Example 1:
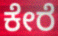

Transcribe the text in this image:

ಕೇರೆ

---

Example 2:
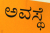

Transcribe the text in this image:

ಅವಸ್ಥೆ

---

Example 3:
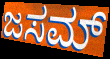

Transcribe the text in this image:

ಜಸಮ್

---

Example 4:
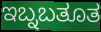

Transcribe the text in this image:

ಇಬ್ನಬತೂತ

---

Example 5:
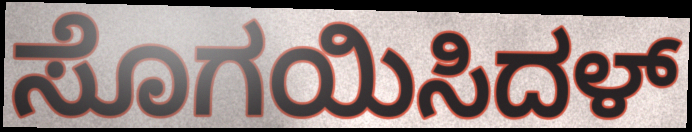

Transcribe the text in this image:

ಸೊಗಯಿಸಿದಳ್